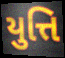
યુત્તિ